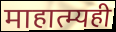
माहात्म्यही